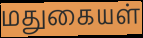
மதுகையள்